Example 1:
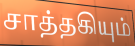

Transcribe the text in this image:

சாத்தகியும்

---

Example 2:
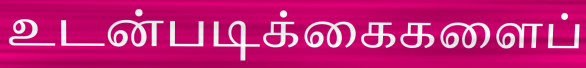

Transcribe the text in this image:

உடன்படிக்கைகளைப்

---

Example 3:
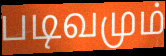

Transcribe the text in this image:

படிவமும்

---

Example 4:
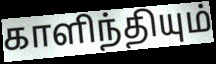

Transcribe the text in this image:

காளிந்தியும்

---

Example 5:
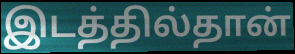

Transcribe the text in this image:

இடத்தில்தான்